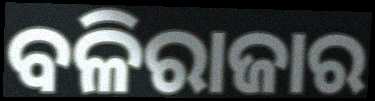
ବଳିରାଜାର